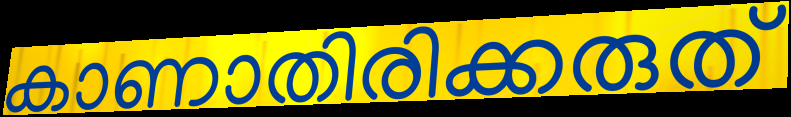
കാണാതിരിക്കരുത്